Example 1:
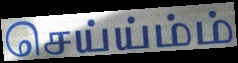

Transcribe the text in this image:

செய்ய்ம்ம்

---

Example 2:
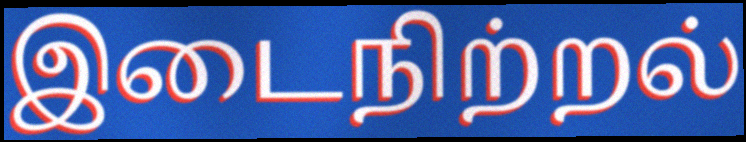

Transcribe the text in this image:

இடைநிற்றல்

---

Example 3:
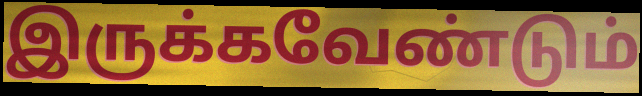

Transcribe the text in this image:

இருக்கவேண்டும்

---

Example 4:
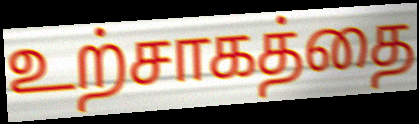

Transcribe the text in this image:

உற்சாகத்தை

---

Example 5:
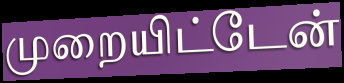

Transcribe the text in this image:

முறையிட்டேன்